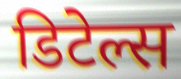
डिटेल्स